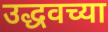
उद्धवच्या